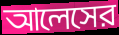
আলেসের